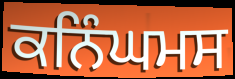
ਕਨਿੰਘਮਸ